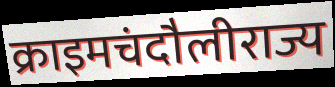
क्राइमचंदौलीराज्य